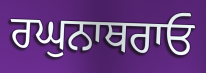
ਰਘੁਨਾਥਰਾਓ